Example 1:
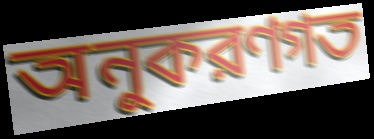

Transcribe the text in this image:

অনুকরণগত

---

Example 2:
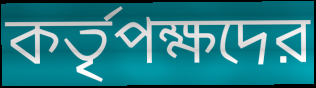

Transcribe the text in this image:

কর্তৃপক্ষদের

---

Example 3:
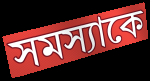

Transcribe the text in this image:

সমস্যাকে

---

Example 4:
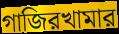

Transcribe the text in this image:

গাজিরখামার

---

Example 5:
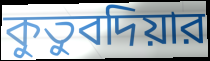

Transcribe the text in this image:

কুতুবদিয়ার